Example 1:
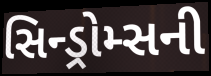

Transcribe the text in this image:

સિન્ડ્રોમ્સની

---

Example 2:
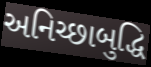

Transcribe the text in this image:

અનિચ્છાબુદ્ધિ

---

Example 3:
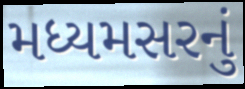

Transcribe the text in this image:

મધ્યમસરનું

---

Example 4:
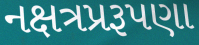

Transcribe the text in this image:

નક્ષત્રપ્રરૂપણા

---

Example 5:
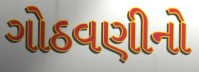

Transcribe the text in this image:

ગોઠવણીનો